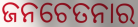
ଜନଚେତନାର